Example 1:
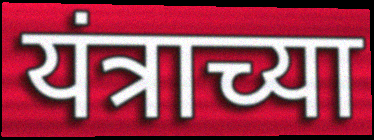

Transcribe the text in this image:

यंत्राच्या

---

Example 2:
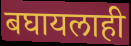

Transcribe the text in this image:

बघायलाही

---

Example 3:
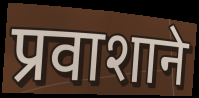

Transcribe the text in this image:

प्रवाशाने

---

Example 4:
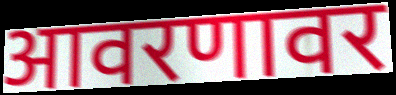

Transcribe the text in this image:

आवरणावर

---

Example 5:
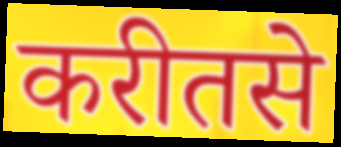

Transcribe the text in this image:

करीतसे